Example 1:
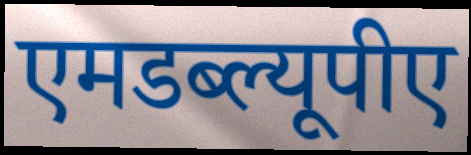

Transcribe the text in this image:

एमडब्ल्यूपीए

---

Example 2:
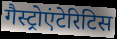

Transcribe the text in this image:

गैस्ट्रोएंटेरिटिस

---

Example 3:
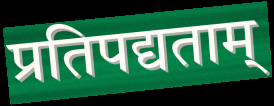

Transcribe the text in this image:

प्रतिपद्यताम्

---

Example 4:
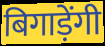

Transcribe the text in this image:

बिगाड़ेंगी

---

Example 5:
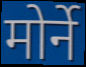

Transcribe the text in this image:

मोर्ने